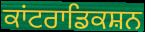
ਕਾਂਟਰਾਡਿਕਸ਼ਨ